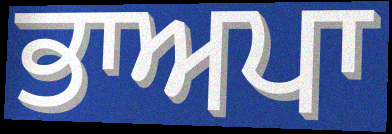
ਭਾਅਪਾ